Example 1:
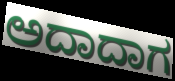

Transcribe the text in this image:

ಅದಾದಾಗ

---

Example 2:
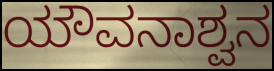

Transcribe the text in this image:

ಯೌವನಾಶ್ವನ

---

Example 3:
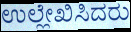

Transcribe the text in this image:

ಉಲ್ಲೇಖಿಸಿದರು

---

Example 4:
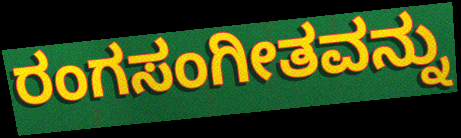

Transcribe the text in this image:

ರಂಗಸಂಗೀತವನ್ನು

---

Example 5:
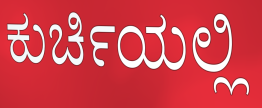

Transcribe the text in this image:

ಕುರ್ಚಿಯಲ್ಲಿ